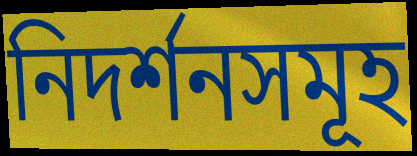
নিদর্শনসমূহ